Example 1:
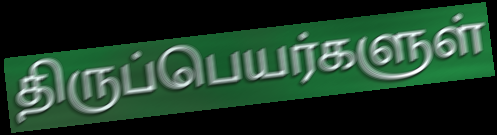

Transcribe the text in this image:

திருப்பெயர்களுள்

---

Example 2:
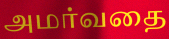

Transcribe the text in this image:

அமர்வதை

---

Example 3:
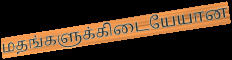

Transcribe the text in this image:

மதங்களுக்கிடையேயான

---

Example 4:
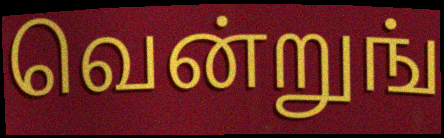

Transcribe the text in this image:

வென்றுங்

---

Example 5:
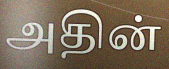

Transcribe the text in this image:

அதின்